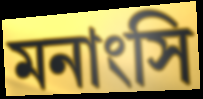
মনাংসি